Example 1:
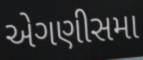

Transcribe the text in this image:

એગણીસમા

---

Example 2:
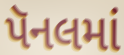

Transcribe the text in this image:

પૅનલમાં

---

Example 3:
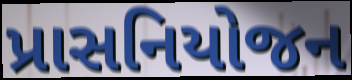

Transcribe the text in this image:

પ્રાસનિયોજન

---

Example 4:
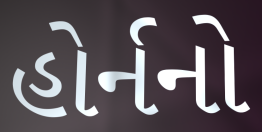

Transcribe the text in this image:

હોર્નનો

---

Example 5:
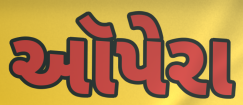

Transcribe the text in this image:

ઑપેરા